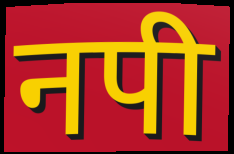
नपी